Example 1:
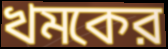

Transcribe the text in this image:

খমকের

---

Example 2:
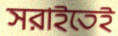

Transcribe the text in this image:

সরাইতেই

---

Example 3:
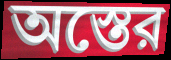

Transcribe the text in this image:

অস্তের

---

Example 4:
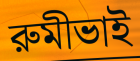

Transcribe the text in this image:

রুমীভাই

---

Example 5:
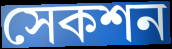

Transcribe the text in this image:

সেকশন